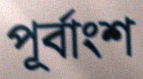
পূৰ্বাংশ